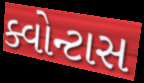
ક્વોન્ટાસ